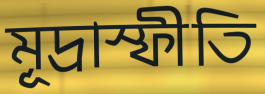
মূদ্রাস্ফীতি